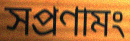
সপ্রণামং